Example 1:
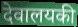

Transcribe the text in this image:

देवालयकी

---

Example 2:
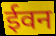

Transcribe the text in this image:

ईवन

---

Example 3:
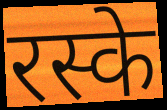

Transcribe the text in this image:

रस्के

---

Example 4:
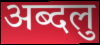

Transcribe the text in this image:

अब्दलु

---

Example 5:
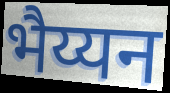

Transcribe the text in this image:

भैय्यन